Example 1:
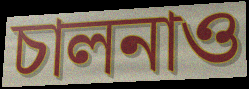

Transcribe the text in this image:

চালনাও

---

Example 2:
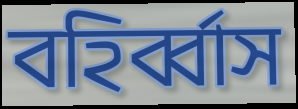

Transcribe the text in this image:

বহির্ব্বাস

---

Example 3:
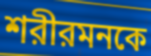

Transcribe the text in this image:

শরীরমনকে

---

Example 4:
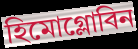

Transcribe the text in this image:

হিমোগ্লোবিন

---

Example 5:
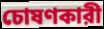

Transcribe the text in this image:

চোষণকারী